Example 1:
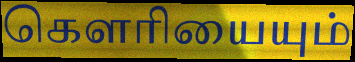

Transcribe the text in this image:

கௌரியையும்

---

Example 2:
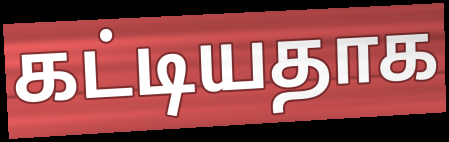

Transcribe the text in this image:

கட்டியதாக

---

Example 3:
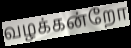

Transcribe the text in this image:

வழக்கன்றோ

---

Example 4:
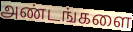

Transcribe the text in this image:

அண்டங்களை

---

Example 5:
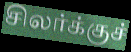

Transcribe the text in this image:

சிலர்க்குச்